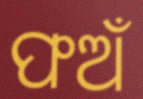
ଫଅଁ